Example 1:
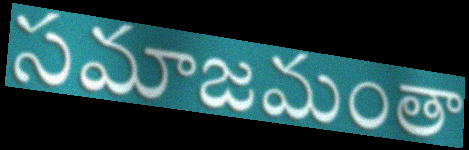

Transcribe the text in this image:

సమాజమంతా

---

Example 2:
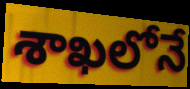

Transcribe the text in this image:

శాఖలోనే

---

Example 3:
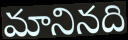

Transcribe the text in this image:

మానినది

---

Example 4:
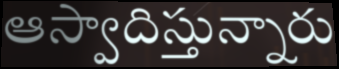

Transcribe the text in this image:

ఆస్వాదిస్తున్నారు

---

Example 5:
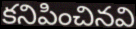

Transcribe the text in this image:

కనిపించినవి